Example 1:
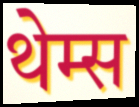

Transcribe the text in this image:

थेम्स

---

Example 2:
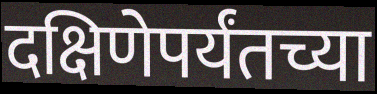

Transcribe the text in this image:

दक्षिणेपर्यंतच्या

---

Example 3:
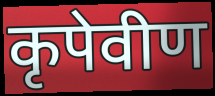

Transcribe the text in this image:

कृपेवीण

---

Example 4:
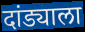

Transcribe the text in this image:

दांड्याला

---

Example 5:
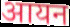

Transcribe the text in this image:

आयन